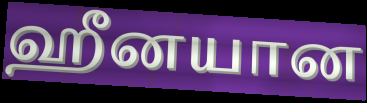
ஹீனயான